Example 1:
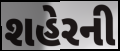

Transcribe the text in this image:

શહેરની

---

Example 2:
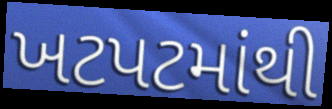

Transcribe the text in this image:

ખટપટમાંથી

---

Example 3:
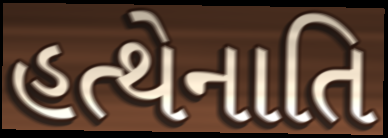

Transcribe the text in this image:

હત્થેનાતિ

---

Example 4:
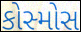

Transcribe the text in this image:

કોસ્મોસ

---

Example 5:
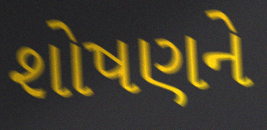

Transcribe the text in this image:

શોષણને